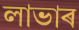
লাভাৰ